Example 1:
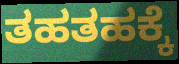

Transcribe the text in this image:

ತಹತಹಕ್ಕೆ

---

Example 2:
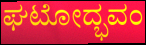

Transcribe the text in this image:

ಘಟೋದ್ಭವಂ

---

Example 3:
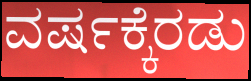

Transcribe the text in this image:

ವರ್ಷಕ್ಕೆರಡು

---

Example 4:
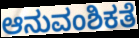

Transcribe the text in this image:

ಆನುವಂಶಿಕತೆ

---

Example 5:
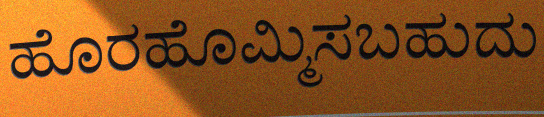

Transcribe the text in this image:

ಹೊರಹೊಮ್ಮಿಸಬಹುದು